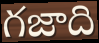
గజాది